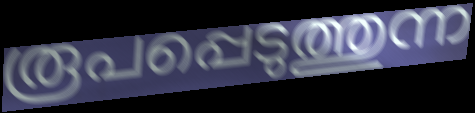
രൂപപ്പെടുത്തുന്ന